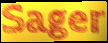
Sager